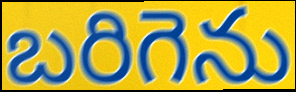
బరిగెను